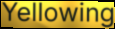
Yellowing